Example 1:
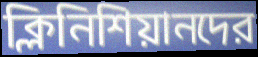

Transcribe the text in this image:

ক্লিনিশিয়ানদের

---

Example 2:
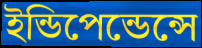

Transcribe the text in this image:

ইন্ডিপেন্ডেন্সে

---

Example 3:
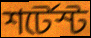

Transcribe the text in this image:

শর্টেস্ট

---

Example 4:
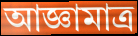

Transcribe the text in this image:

আজ্ঞামাত্র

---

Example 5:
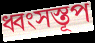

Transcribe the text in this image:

ধ্বংসস্তূপ